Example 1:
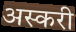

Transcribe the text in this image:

अस्करी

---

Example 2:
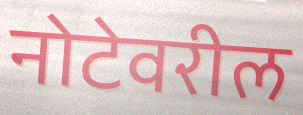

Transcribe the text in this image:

नोटेवरील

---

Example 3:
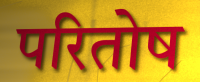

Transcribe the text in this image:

परितोष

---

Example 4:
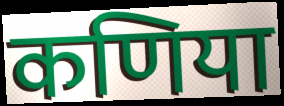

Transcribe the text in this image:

कणिया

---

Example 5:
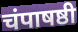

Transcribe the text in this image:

चंपाषष्ठी